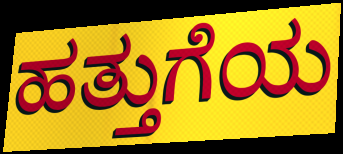
ಹತ್ತುಗೆಯ